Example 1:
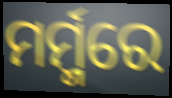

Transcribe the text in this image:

ମର୍ମ୍ମରେ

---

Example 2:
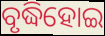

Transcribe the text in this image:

ବୃଦ୍ଧିହୋଇ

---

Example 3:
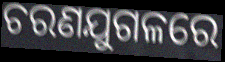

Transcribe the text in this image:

ଚରଣଯୁଗଳରେ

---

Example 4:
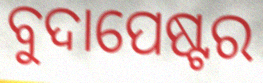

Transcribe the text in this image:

ବୁଦାପେଷ୍ଟର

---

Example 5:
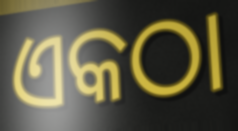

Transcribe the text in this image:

ଏକଠା